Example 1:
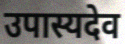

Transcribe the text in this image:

उपास्यदेव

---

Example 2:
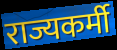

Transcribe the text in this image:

राज्यकर्मी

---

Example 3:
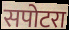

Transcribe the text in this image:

सपोटरा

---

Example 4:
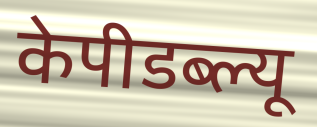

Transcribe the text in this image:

केपीडब्ल्यू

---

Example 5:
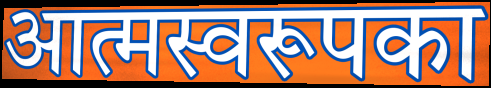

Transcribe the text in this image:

आत्मस्वरूपका